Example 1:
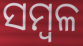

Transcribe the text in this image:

ସମ୍ବଳ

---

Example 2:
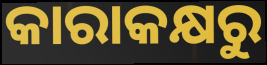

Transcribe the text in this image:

କାରାକକ୍ଷରୁ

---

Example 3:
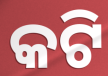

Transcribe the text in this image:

କଟି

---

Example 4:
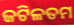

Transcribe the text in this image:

ଜଟିଳତମ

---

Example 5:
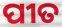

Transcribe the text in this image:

ପୀତ